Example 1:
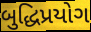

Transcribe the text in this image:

બુદ્ધિપ્રયોગ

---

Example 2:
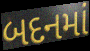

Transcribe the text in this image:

બદનમાં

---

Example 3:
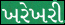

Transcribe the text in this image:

ખરેખરી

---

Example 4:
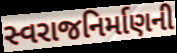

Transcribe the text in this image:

સ્વરાજનિર્માણની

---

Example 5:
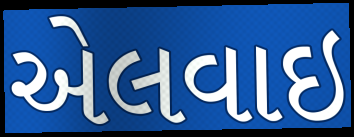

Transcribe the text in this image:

એલવાઇ